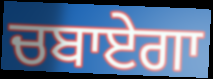
ਚਬਾਏਗਾ